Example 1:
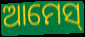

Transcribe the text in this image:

ଆମେସ୍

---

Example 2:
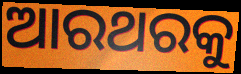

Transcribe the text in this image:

ଆରଥରକୁ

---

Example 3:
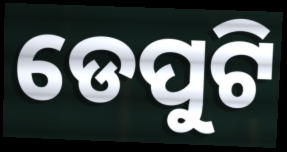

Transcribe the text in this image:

ଡେପୁଟି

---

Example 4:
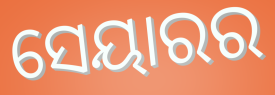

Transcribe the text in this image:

ସେୟାରର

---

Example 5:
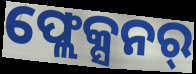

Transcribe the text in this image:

ଫ୍ଲେକ୍ସନର୍